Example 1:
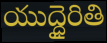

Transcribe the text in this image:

యుద్ధైరితి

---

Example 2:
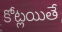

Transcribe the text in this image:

కోట్లయితే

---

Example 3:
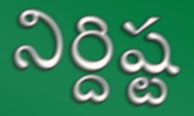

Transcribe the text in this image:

నిర్దిష్ట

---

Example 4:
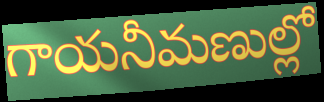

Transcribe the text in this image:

గాయనీమణుల్లో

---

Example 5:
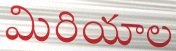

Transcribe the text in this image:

మిరియాల